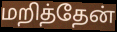
மறித்தேன்